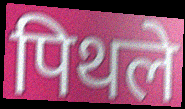
पिथले